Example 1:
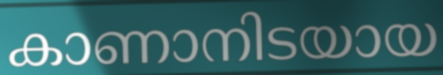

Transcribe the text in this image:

കാണാനിടയായ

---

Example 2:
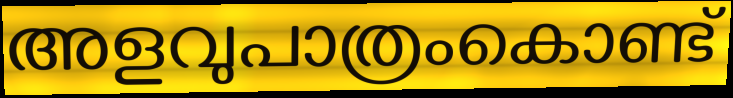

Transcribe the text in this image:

അളവുപാത്രംകൊണ്ട്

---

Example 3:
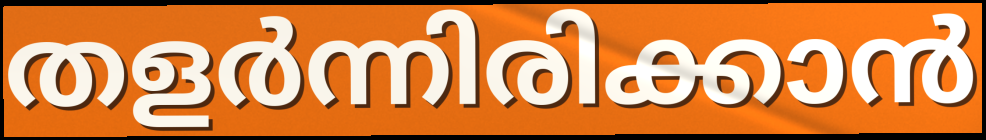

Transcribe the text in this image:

തളർന്നിരിക്കാൻ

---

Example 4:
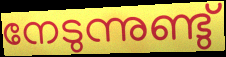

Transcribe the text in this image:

നേടുന്നുണ്ടു്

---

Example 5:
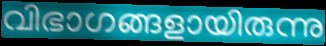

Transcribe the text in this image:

വിഭാഗങ്ങളായിരുന്നു